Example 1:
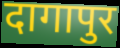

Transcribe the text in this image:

दागापुर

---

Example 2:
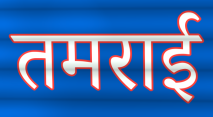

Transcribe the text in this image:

तमराई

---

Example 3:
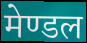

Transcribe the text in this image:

मेण्डल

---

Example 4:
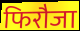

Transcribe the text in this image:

फिरौजा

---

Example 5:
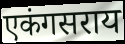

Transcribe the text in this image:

एकंगसराय